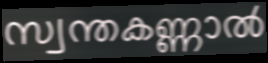
സ്വന്തകണ്ണാൽ